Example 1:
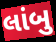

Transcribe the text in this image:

લાંબુ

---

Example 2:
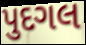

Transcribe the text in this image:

પુદગલ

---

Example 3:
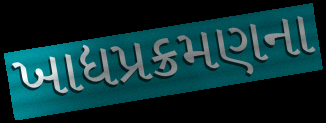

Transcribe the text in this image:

ખાદ્યપ્રક્રમણના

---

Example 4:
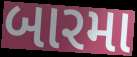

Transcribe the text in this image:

બારમા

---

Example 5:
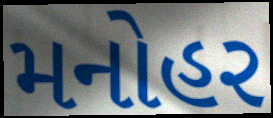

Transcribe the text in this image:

મનોહર